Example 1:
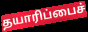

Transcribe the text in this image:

தயாரிப்பைச்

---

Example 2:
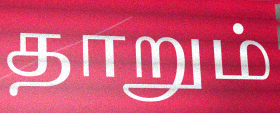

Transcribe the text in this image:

தாறும்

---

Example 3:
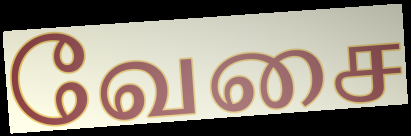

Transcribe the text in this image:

வேசை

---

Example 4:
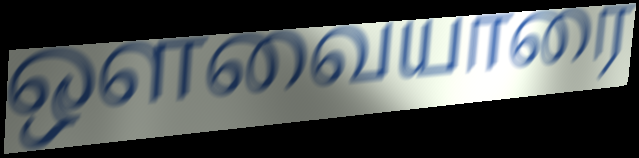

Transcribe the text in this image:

ஔவையாரை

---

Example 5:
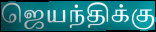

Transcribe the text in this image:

ஜெயந்திக்கு